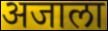
अजाला